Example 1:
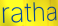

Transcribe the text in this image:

ratha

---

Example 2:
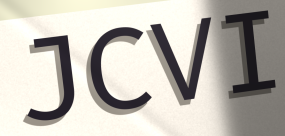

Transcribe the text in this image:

JCVI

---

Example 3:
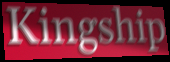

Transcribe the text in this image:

Kingship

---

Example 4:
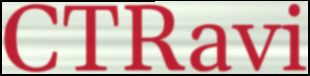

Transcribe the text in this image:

CTRavi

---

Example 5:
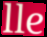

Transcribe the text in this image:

lle